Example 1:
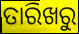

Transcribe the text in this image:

ତାରିଖରୁ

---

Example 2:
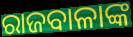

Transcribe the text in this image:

ରାଜବାଳାଙ୍କ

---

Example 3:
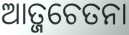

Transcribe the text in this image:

ଆତ୍ଜଚେତନା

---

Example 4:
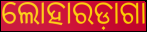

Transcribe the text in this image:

ଲୋହାରଡ଼ାଗା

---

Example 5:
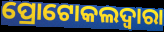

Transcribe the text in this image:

ପ୍ରୋଟୋକଲଦ୍ୱାରା